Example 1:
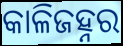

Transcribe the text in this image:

କାଳିଜହ୍ନର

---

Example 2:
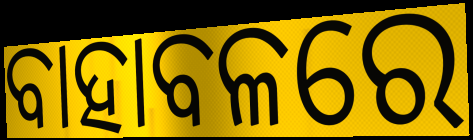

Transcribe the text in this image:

ବାହାବଳରେ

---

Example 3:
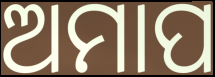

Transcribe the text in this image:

ଅମାପ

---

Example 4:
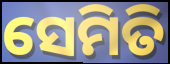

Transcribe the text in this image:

ସେମିତି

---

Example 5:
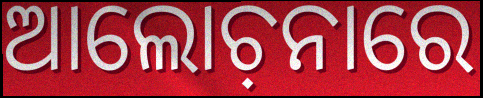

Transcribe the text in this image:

ଆଲୋଚ଼ନାରେ